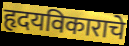
हृदयविकाराचे